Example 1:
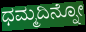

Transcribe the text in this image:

ಧಮ್ಮದಿನ್ನೋ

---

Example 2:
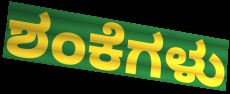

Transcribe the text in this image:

ಶಂಕೆಗಳು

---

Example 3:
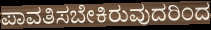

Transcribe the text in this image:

ಪಾವತಿಸಬೇಕಿರುವುದರಿಂದ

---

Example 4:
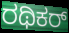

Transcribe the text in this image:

ರಥಿಕರ್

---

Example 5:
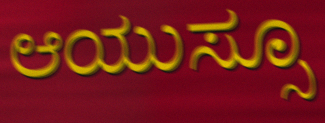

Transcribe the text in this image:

ಆಯುಸ್ಸೂ